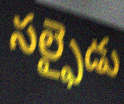
సల్ఫైడు